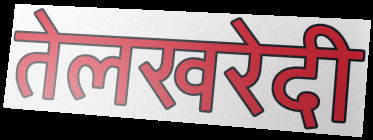
तेलखरेदी